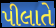
પીલાતે